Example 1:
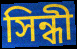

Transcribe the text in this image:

সিন্ধী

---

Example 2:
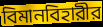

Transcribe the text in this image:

বিমানবিহারীর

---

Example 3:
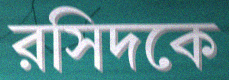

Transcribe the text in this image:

রসিদকে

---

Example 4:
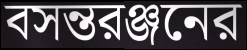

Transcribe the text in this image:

বসন্তরঞ্জনের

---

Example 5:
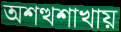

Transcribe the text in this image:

অশত্থশাখায়